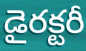
డైరక్టరీ